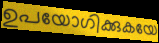
ഉപയോഗിക്കുകയേ